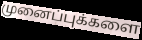
முனைப்புக்களை